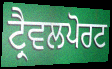
ਟ੍ਰੈਵਲਪੋਰਟ